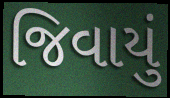
જિવાયું